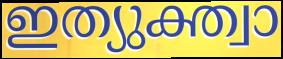
ഇത്യുക്ത്വാ